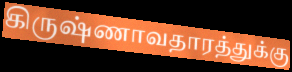
கிருஷ்ணாவதாரத்துக்கு